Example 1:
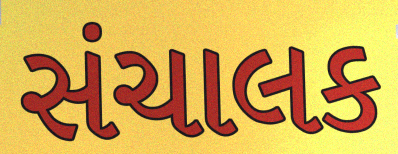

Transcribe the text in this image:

સંચાલક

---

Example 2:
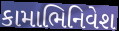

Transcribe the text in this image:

કામાભિનિવેશ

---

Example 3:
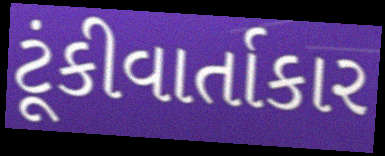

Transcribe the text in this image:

ટૂંકીવાર્તાકાર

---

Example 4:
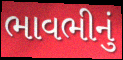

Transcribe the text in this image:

ભાવભીનું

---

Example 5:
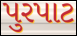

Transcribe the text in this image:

પુરપાટ